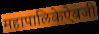
महापालिकेऐवजी